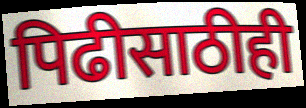
पिढीसाठीही